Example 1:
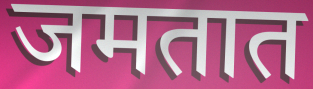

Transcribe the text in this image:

जमतात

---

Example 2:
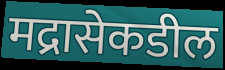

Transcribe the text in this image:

मद्रासेकडील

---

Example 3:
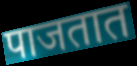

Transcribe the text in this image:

पाजतात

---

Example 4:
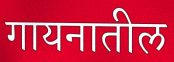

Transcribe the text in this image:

गायनातील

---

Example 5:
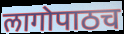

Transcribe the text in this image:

लागोपाठच